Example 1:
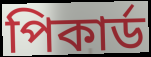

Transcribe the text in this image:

পিকার্ড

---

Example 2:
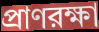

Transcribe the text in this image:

প্রাণরক্ষা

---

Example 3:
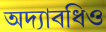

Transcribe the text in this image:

অদ্যাবধিও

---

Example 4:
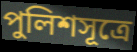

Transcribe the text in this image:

পুলিশসূত্রে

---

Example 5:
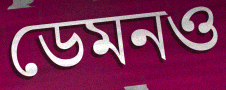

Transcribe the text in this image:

ডেমনও